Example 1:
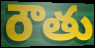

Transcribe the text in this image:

రౌతు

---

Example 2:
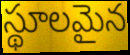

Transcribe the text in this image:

స్థూలమైన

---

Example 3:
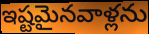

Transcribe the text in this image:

ఇష్టమైనవాళ్లను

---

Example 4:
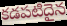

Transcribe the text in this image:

కడపటిదైన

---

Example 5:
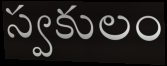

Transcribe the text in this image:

స్వకులం